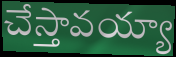
చేస్తావయ్యా